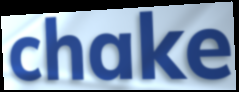
chake